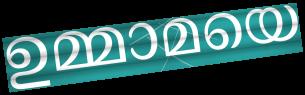
ഉമ്മാമയെ